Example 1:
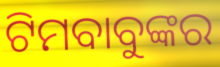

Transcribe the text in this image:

ଟିମବାବୁଙ୍କର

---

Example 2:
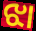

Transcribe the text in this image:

ଝା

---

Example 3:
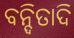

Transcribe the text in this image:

ବନ୍ଦିତାଦି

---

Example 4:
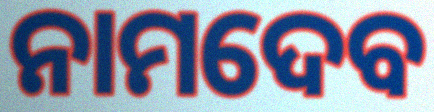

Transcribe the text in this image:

ନାମଦେବ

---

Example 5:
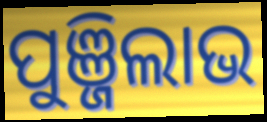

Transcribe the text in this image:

ପୁଞ୍ଜିଲାଭ